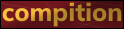
compition